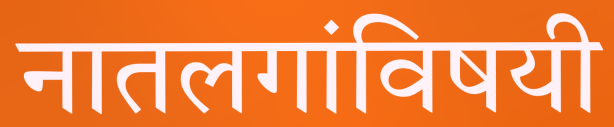
नातलगांविषयी